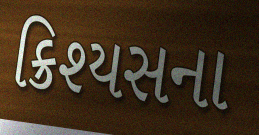
ક્રિશ્યસના